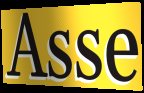
Asse